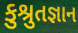
કુશ્રુતજ્ઞાન